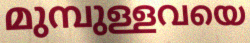
മുമ്പുള്ളവയെ